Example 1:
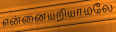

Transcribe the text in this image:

என்னையறியாமலே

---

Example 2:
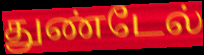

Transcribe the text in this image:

துண்டேல்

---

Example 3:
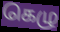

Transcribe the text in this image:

கெழு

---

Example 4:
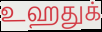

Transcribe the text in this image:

உஹதுக்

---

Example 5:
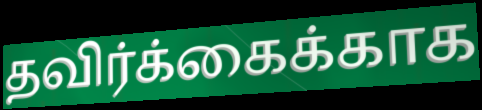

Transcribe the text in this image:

தவிர்க்கைக்காக